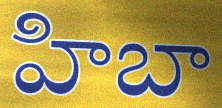
హిబా